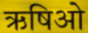
ऋषिओ